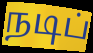
நடிப்